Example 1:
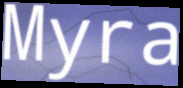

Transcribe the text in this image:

Myra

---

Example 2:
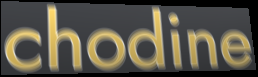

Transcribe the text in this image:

chodine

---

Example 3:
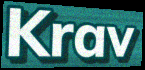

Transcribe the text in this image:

Krav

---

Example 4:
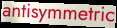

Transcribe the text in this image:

antisymmetric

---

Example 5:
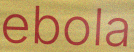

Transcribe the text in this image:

ebola